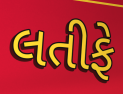
લતીફે